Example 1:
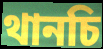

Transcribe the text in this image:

থানচি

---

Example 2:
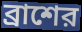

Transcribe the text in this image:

ব্রাশের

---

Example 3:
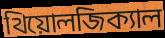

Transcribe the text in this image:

থিয়োলজিক্যাল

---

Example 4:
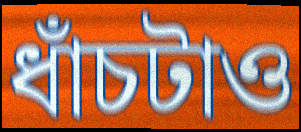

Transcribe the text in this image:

ধাঁচটাও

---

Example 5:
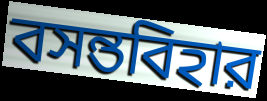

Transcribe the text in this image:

বসন্তবিহার